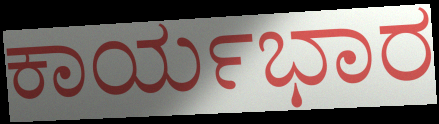
ಕಾರ್ಯಭಾರ